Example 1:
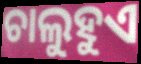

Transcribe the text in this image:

ଚାଲୁହୁଏ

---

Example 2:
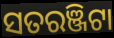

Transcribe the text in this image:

ସତରଞ୍ଜିଟା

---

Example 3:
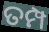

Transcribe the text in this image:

ତମ୍ପ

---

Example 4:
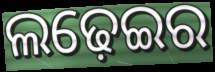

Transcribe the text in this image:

ଲଢ଼େଇର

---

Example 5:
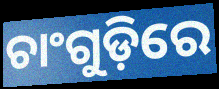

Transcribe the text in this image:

ଚାଂଗୁଡ଼ିରେ